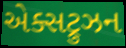
એક્સટ્રુઝન